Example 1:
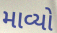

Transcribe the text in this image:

માવ્યો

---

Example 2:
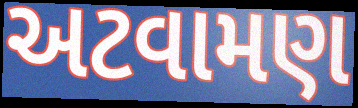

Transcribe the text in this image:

અટવામણ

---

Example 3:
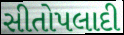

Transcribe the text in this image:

સીતોપલાદી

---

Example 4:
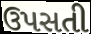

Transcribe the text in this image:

ઉપસતી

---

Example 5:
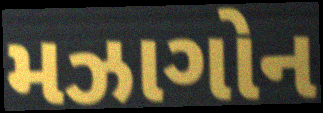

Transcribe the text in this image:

મઝાગોન